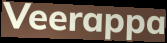
Veerappa